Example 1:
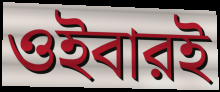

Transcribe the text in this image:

ওইবারই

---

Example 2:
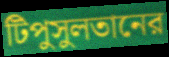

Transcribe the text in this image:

টিপুসুলতানের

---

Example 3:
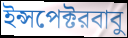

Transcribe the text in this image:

ইন্সপেক্টরবাবু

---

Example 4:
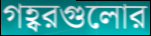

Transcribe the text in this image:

গহ্বরগুলোর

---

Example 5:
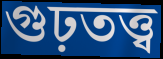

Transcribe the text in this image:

গুঢ়তত্ত্ব